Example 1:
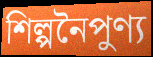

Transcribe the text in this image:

শিল্পনৈপুণ্য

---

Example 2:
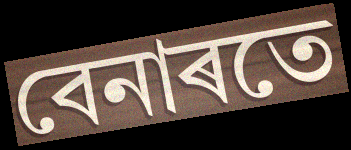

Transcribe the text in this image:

বেনাৰতে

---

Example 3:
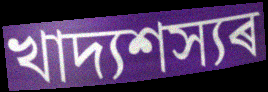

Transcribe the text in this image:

খাদ্যশস্যৰ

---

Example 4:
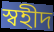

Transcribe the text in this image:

স্বহীদ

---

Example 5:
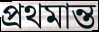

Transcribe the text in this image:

প্ৰথমান্ত